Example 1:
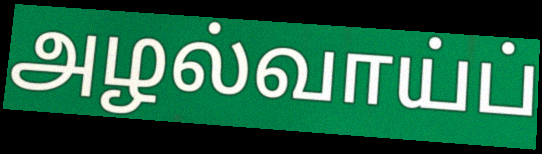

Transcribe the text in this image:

அழல்வாய்ப்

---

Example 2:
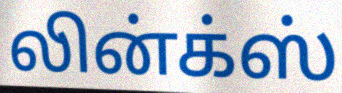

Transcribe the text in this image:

லின்க்ஸ்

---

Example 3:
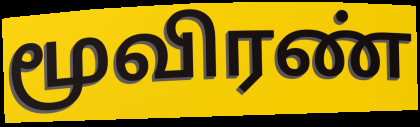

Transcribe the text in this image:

மூவிரண்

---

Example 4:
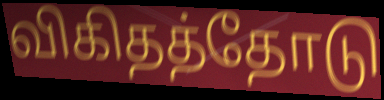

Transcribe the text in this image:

விகிதத்தோடு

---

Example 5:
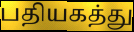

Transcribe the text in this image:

பதியகத்து